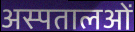
अस्पतालओं